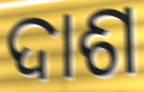
ଦାଶ